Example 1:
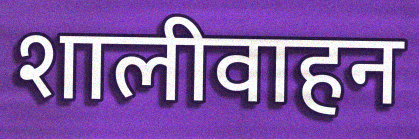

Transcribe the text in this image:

शालीवाहन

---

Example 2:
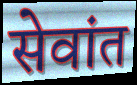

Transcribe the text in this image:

सेवांत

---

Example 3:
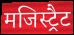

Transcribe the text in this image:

मजिस्ट्रैट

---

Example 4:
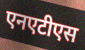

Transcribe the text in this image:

एनएटीएस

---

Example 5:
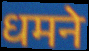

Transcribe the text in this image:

धमने